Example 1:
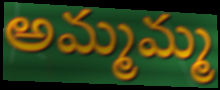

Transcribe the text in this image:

అమ్మమ్మ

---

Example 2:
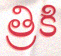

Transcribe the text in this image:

త్రికి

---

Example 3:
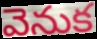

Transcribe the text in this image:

వెనుక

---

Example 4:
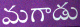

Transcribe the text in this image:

మగాడు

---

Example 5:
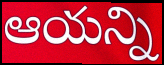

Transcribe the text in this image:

ఆయన్ని